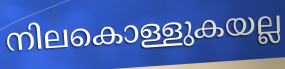
നിലകൊള്ളുകയല്ല